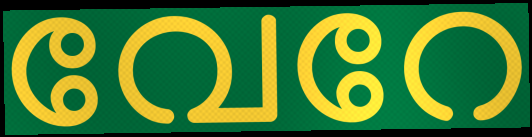
വേറേ